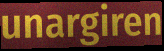
unargiren